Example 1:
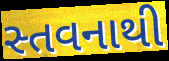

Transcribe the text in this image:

સ્તવનાથી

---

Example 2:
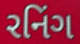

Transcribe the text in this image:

રનિંગ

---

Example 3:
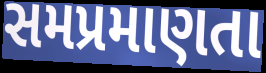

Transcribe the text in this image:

સમપ્રમાણતા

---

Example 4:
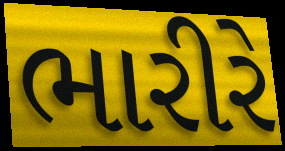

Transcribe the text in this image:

ભારીરે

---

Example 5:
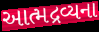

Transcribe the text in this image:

આત્મદ્રવ્યના